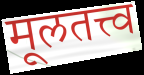
मूलतत्त्व